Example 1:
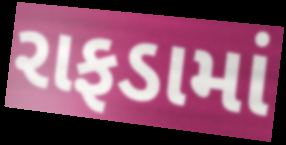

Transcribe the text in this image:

રાફડામાં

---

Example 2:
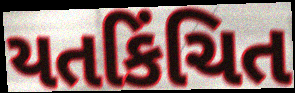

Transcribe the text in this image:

યતકિંચિત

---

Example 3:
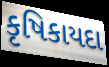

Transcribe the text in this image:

કૃષિકાયદા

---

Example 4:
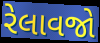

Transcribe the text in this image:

રેલાવજો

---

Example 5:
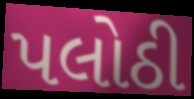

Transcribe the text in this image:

પલોઠી